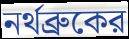
নর্থব্রুকের